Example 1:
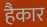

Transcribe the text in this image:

हैकार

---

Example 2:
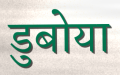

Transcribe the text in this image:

डुबोया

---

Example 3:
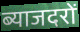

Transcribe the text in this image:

ब्याजदरों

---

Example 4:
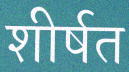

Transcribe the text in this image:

शीर्षत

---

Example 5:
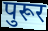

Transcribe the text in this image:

पुरूर